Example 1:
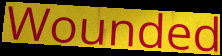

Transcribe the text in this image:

Wounded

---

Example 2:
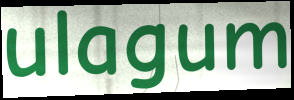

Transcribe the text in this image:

ulagum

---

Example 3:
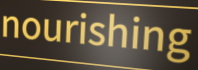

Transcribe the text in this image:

nourishing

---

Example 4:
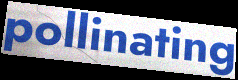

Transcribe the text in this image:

pollinating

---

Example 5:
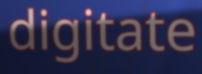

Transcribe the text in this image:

digitate